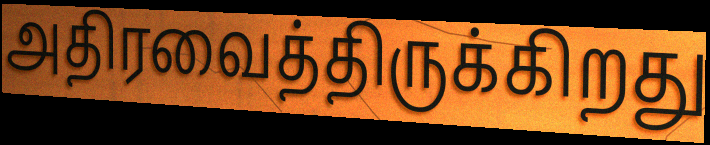
அதிரவைத்திருக்கிறது